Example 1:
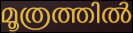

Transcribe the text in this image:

മൂത്രത്തിൽ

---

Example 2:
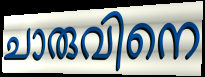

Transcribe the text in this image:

ചാരുവിനെ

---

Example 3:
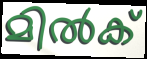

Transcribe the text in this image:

മിൽക്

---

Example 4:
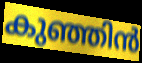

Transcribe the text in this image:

കുഞ്ഞിൻ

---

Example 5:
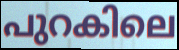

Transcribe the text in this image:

പുറകിലെ